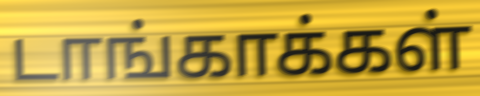
டாங்காக்கள்